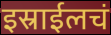
इस्राईलचं